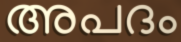
അപദം